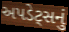
અપડેટ્સનું